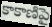
కాకాణిపై